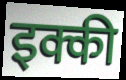
इक्की